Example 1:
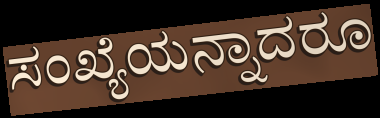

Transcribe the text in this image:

ಸಂಖ್ಯೆಯನ್ನಾದರೂ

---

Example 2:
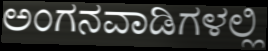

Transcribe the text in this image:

ಅಂಗನವಾಡಿಗಳಲ್ಲಿ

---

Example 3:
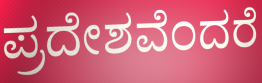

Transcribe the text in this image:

ಪ್ರದೇಶವೆಂದರೆ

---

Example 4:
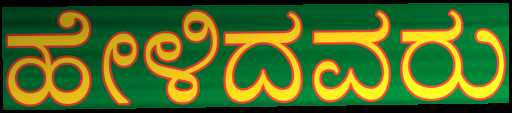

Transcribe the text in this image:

ಹೇಳಿದವರು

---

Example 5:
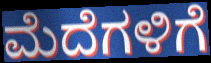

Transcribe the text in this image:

ಮೆದೆಗಳಿಗೆ